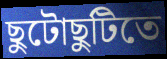
ছুটোছুটিতে